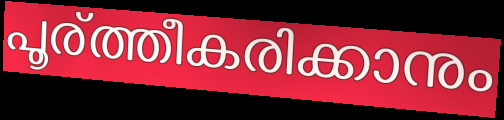
പൂര്ത്തീകരിക്കാനും